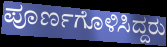
ಪೂರ್ಣಗೊಳಿಸಿದ್ದರು